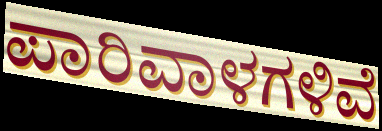
ಪಾರಿವಾಳಗಳಿವೆ